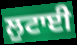
ਲੁਟਾਈ